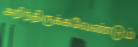
அறிந்திருக்கவேண்டும்